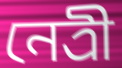
নেত্রী